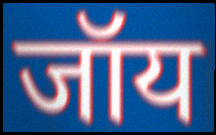
जॉय